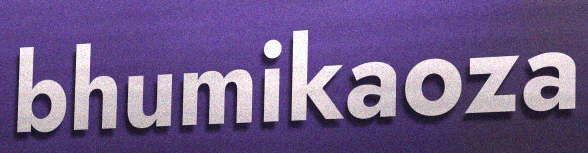
bhumikaoza